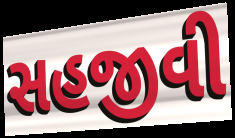
સહજીવી